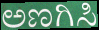
ಅಣಗಿಸಿ